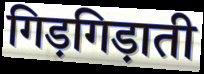
गिड़गिड़ाती